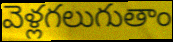
వెళ్లగలుగుతాం